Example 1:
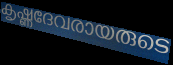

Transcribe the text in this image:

കൃഷ്ണദേവരായരുടെ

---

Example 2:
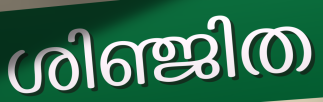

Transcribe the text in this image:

ശിഞ്ജിത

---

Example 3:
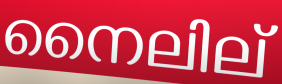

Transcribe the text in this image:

നൈലില്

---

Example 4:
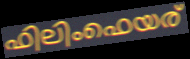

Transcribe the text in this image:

ഫിലിംഫെയര്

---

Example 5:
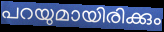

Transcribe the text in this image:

പറയുമായിരിക്കും